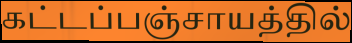
கட்டப்பஞ்சாயத்தில்